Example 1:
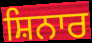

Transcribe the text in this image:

ਸ਼ਿਨਾਰ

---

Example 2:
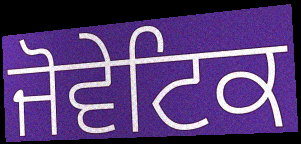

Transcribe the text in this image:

ਜੋਵੇਟਿਕ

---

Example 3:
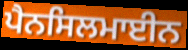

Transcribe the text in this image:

ਪੈਨਸਿਲਮਾਈਨ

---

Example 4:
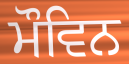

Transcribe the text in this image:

ਮੌਵਿਨ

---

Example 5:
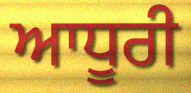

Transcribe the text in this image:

ਆਧੂਰੀ